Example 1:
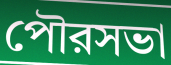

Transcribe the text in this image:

পৌরসভা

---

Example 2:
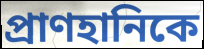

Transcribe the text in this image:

প্রাণহানিকে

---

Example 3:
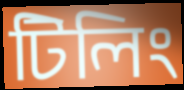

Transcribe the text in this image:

টিলিং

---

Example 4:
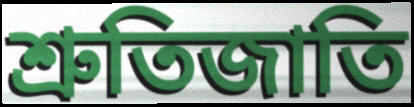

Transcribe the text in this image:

শ্রুতিজাতি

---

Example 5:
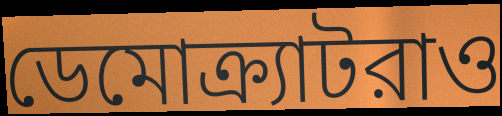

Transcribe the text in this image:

ডেমোক্র্যাটরাও